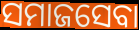
ସମାଜସେବା